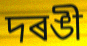
দৰঙী